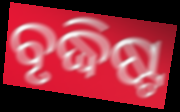
ବୃଦ୍ଧିଷ୍ଟ